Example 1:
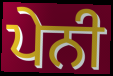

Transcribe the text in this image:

ਪੇਨੀ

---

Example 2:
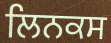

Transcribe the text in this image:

ਲਿਨਕਸ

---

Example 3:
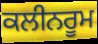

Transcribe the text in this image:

ਕਲੀਨਰੂਮ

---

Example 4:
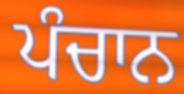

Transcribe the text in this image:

ਪੰਚਾਨ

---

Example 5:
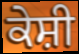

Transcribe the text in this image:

ਕੇਸ਼ੀ